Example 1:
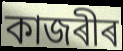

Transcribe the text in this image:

কাজৰীৰ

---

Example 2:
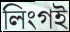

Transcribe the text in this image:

লিংগই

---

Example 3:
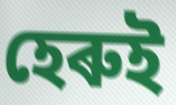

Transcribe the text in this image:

হেৰুই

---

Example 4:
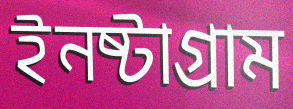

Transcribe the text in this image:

ইনষ্টাগ্ৰাম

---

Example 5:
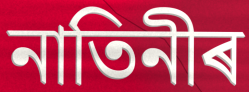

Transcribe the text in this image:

নাতিনীৰ